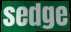
sedge